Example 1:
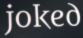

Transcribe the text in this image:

joked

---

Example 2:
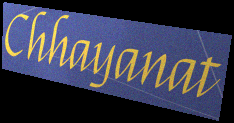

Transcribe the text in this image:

Chhayanat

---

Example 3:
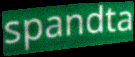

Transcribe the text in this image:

spandta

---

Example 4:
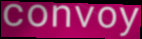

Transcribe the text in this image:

convoy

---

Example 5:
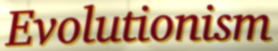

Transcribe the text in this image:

Evolutionism